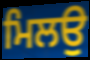
ਮਿਲਉ